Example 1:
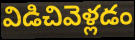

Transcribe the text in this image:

విడిచివెళ్లడం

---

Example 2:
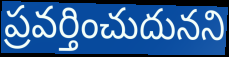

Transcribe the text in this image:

ప్రవర్తించుదునని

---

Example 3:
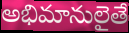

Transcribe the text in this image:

అభిమానులైతే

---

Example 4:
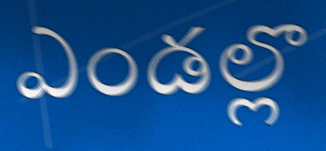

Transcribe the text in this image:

ఎండల్లొ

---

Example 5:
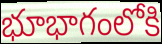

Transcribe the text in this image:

భూభాగంలోకి